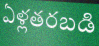
ఏళ్లతరబడి